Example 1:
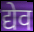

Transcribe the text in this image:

द्येव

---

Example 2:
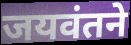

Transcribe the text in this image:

जयवंतने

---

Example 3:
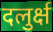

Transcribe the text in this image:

दलुर्क्ष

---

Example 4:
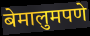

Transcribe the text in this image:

बेमालुमपणे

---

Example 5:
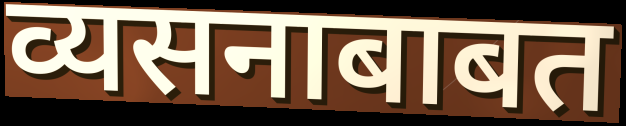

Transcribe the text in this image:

व्यसनाबाबत